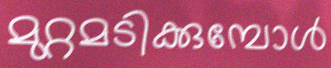
മുറ്റമടിക്കുമ്പോൾ